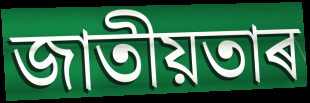
জাতীয়তাৰ